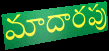
మాదారపు